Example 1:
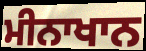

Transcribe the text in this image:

ਮੀਨਾਖਾਨ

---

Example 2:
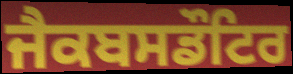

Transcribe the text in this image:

ਜੈਕਬਸਡੌਟਿਰ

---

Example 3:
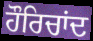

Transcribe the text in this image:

ਹੌਰਿਚਾਂਦ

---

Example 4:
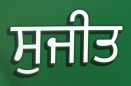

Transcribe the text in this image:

ਸੁਜੀਤ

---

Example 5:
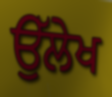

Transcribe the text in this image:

ਉੱਲੇਖ